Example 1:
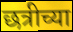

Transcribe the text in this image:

छत्रीच्या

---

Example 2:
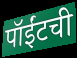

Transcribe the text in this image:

पॉईंटची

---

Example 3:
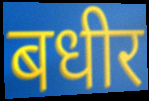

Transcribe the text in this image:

बधीर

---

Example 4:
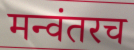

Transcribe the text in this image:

मन्वंतरच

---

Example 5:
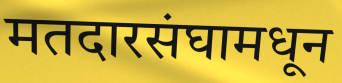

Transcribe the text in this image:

मतदारसंघामधून